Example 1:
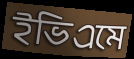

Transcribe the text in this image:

ইভিএমে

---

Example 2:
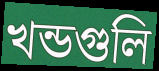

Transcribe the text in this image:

খন্ডগুলি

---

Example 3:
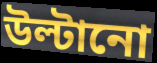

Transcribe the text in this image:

উল্টানো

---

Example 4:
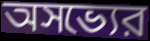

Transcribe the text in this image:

অসভ্যের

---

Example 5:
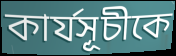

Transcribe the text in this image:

কার্যসূচীকে